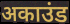
अकाउंड